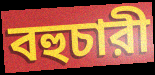
বহুচারী